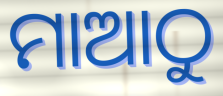
ମାଆଠୁ